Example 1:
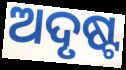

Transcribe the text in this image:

ଅଦୃଷ୍ଟ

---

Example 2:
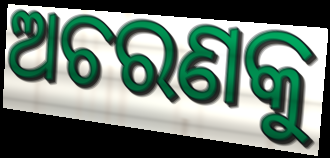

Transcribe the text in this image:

ଅଚରଣକୁ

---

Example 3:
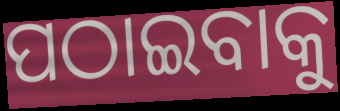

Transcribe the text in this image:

ପଠାଇବାକୁ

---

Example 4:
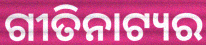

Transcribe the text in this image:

ଗୀତିନାଟ୍ୟର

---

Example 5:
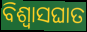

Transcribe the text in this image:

ବିଶ୍ବାସଘାତ